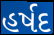
હર્ષદ